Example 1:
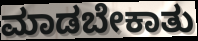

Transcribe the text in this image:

ಮಾಡಬೇಕಾತು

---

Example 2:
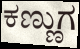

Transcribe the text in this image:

ಕಣ್ಣುಗ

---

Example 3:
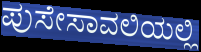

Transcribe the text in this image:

ಪುಸೇಸಾವಲಿಯಲ್ಲಿ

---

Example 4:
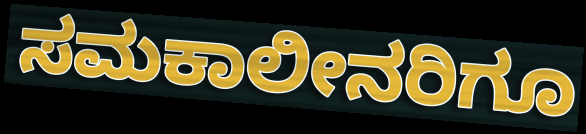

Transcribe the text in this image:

ಸಮಕಾಲೀನರಿಗೂ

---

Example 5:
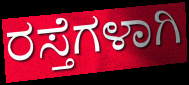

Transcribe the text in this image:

ರಸ್ತೆಗಳಾಗಿ